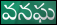
వనఘ